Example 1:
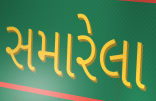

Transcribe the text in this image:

સમારેલા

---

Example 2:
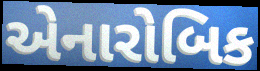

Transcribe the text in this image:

એનારોબિક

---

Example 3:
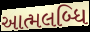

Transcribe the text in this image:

આત્મલબ્ધિ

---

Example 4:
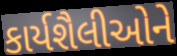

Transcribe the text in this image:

કાર્યશૈલીઓને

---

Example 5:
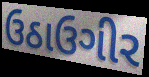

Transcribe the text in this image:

ઉઠાઉગીર